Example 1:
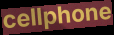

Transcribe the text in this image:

cellphone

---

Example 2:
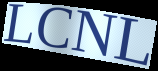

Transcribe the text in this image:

LCNL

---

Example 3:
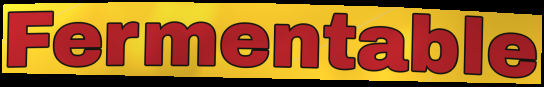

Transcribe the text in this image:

Fermentable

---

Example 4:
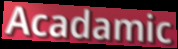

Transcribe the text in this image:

Acadamic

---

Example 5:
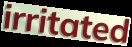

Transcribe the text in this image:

irritated